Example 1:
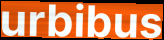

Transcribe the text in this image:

urbibus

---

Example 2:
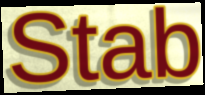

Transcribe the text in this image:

Stab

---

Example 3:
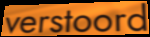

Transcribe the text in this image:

verstoord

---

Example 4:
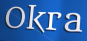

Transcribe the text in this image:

Okra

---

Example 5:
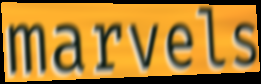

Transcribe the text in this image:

marvels